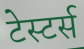
टेस्टर्स